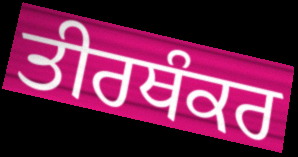
ਤੀਰਥੰਕਰ